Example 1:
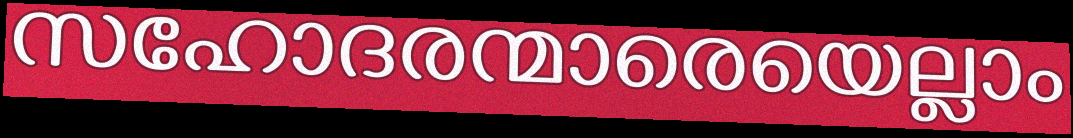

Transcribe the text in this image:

സഹോദരന്മാരെയെല്ലാം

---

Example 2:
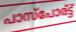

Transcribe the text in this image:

പാസ്പോര്ട്ട്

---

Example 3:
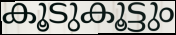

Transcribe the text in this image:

കൂടുകൂട്ടും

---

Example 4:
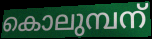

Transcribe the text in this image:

കൊലുമ്പന്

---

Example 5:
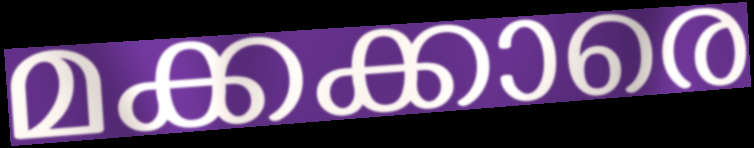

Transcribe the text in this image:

മക്കക്കാരെ